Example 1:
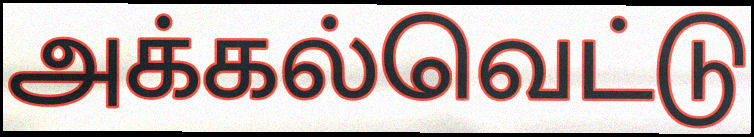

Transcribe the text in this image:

அக்கல்வெட்டு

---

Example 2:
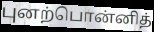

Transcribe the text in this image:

புனற்பொன்னித்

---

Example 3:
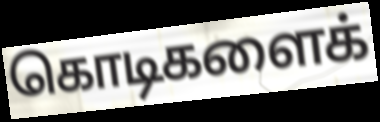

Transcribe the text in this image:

கொடிகளைக்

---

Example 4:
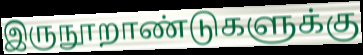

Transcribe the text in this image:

இருநூறாண்டுகளுக்கு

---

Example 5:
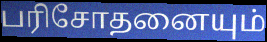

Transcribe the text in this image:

பரிசோதனையும்